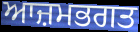
ਆਜ਼ਮਭਗਤ